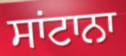
ਸਾਂਟਾਨਾ